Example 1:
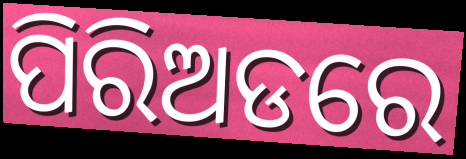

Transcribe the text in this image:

ପିରିଅଡରେ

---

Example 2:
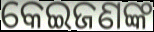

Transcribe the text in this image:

କେଇଜଣଙ୍କ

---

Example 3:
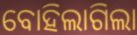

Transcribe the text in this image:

ବୋହିଲାଗିଲା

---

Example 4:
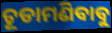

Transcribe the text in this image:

ଚୂଡାମଣିବାବୁ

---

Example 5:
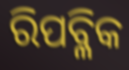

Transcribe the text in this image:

ରିପବ୍ଳିକ